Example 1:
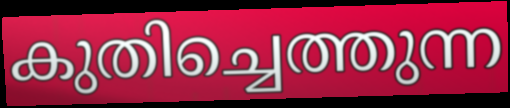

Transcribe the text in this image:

കുതിച്ചെത്തുന്ന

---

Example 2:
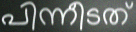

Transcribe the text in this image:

പിന്നീടത്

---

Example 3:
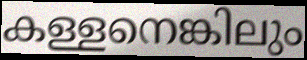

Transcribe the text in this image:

കള്ളനെങ്കിലും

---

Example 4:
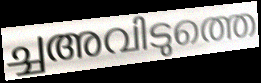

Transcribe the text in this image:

ച്ചഅവിടുത്തെ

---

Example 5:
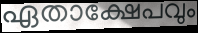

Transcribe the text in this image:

ഏതാക്ഷേപവും